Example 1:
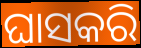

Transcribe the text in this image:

ଘାସକରି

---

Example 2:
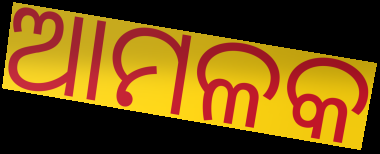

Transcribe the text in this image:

ଆମଳକ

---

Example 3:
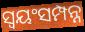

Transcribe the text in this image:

ସ୍ବୟଂସମ୍ପନ୍ନ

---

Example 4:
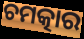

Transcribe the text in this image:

ଚମତ୍କାର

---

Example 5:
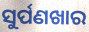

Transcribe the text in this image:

ସୁର୍ପଣଖାର